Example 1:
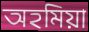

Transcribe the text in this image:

অহমিয়া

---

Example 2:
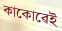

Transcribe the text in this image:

কাকোৱেই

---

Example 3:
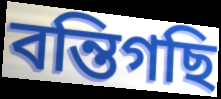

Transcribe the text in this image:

বন্তিগছি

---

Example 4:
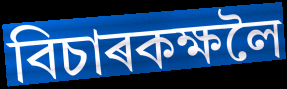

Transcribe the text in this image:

বিচাৰকক্ষলৈ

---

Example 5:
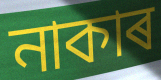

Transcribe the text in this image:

নাকাৰ